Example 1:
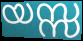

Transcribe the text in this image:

യസ്സ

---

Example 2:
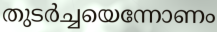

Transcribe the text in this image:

തുടർച്ചയെന്നോണം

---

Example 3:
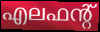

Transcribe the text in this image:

എലഫന്റ്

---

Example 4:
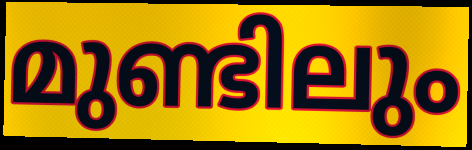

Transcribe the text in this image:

മുണ്ടിലും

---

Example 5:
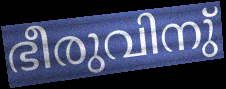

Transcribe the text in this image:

ഭീരുവിനു്